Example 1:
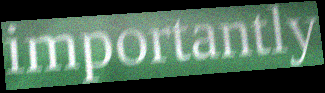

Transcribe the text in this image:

importantly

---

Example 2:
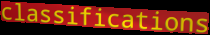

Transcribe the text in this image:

classifications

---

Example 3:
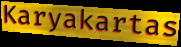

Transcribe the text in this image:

Karyakartas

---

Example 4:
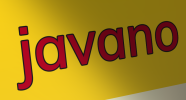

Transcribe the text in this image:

javano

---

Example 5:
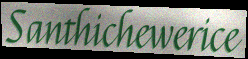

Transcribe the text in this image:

Santhichewerice